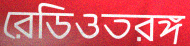
রেডিওতরঙ্গ